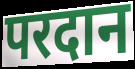
परदान